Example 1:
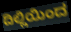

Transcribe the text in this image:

ದಿಲ್ಲಿಯಿಂದ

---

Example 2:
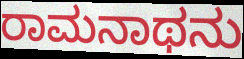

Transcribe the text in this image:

ರಾಮನಾಥನು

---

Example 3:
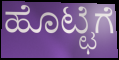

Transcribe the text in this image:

ಹೊಟ್ಟೆಗೆ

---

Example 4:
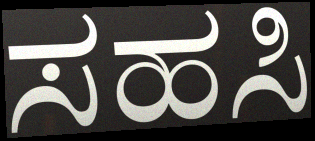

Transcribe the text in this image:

ಸಹಸಿ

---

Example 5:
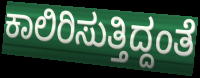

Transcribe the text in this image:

ಕಾಲಿರಿಸುತ್ತಿದ್ದಂತೆ